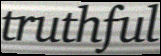
truthful